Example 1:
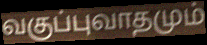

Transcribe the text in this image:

வகுப்புவாதமும்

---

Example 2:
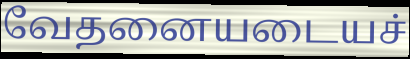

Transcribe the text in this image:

வேதனையடையச்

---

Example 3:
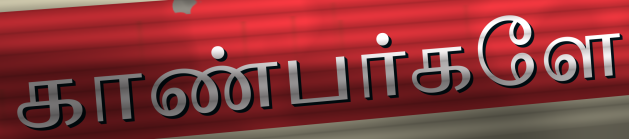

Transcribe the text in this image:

காண்பர்களே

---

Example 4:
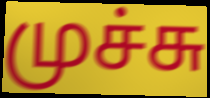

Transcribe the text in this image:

முச்சு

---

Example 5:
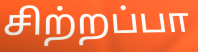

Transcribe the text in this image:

சிற்றப்பா